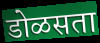
डोळसता